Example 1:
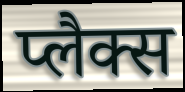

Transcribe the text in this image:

प्लैक्स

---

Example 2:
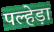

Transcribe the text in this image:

पल्हेड़ा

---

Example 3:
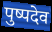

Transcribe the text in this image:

पुष्पदेव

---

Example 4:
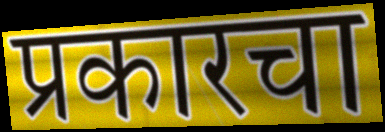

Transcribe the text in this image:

प्रकारचा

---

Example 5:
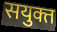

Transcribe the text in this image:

सयुक्‍त